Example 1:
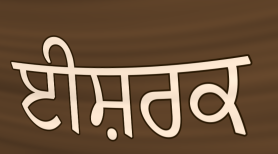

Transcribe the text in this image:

ਈਸ਼ਰਕ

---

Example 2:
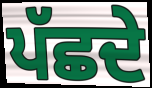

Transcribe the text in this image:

ਪੱਛਦੇ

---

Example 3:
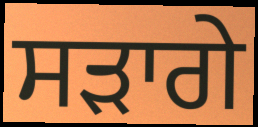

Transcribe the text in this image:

ਸੜਾਗੇ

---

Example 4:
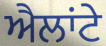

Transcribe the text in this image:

ਐਲਾਂਟੇ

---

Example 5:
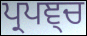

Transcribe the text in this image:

ਪ੍ਰਪਞ੍ਚ